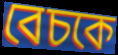
বেচকে